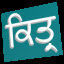
ਕਿਤ੍ਰ